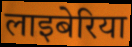
लाइबेरिया